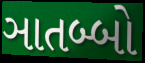
ઞાતબ્બો